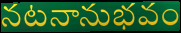
నటనానుభవం